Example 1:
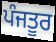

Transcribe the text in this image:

ਪੰਜਤੂਰ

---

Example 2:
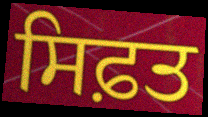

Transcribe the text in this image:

ਸਿਫ਼ਤ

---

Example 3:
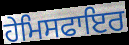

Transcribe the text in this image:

ਹੇਮਿਸਫਾਇਰ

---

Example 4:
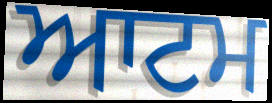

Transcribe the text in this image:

ਆਟਮ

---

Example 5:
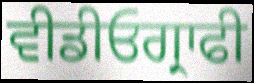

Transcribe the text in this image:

ਵੀਡੀਓਗ੍ਰਾਫੀ